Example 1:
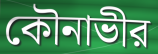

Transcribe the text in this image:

কৌনাভীর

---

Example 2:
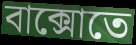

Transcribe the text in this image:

বাক্সোতে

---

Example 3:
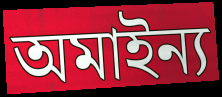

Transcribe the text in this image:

অমাইন্য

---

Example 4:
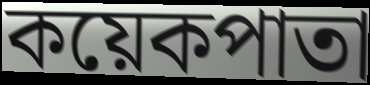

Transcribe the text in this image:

কয়েকপাতা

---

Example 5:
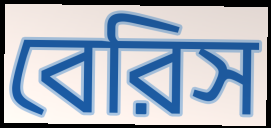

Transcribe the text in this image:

বেরিস